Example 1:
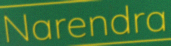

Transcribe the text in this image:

Narendra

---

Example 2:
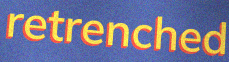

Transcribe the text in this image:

retrenched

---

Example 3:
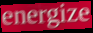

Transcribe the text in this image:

energize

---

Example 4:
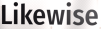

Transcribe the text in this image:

Likewise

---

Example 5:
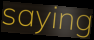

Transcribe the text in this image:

saying